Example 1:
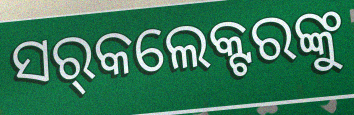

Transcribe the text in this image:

ସର୍‌କଲେକ୍ଟରଙ୍କୁ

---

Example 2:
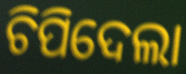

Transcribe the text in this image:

ଚିପିଦେଲା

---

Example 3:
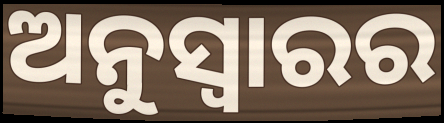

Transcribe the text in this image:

ଅନୁସ୍ଵାରର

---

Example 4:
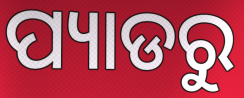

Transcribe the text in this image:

ପ୍ୟାଡରୁ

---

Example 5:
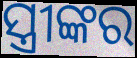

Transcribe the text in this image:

ସ୍ତ୍ରୀଙ୍କର